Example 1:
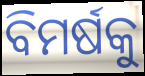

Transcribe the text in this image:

ବିମର୍ଷକୁ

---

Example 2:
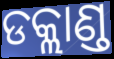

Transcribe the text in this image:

ଡକ୍ଲାଣ୍ଡ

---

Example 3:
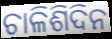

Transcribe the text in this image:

ଚାଳିଶିଦିନ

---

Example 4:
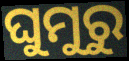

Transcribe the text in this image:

ଘୁମୁରୁ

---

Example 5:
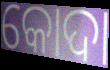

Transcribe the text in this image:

କୋଦା